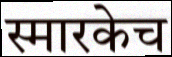
स्मारकेच